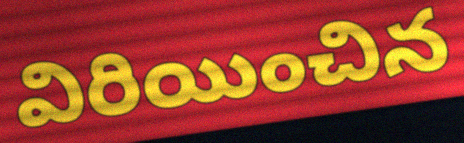
విరియించిన